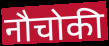
नौचोकी